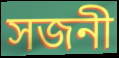
সজনী